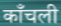
काँचली